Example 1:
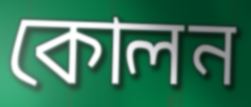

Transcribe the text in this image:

কোলন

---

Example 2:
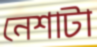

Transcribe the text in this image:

নেশাটা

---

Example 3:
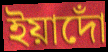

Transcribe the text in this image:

ইয়াদোঁ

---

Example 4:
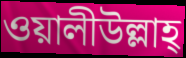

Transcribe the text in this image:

ওয়ালীউল্লাহ্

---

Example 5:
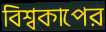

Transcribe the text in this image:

বিশ্বকাপের